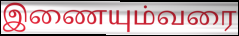
இணையும்வரை